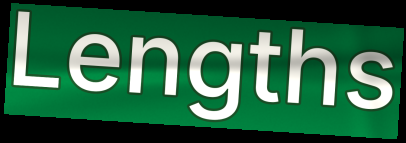
Lengths